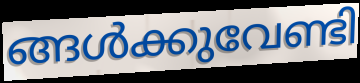
ങ്ങൾക്കുവേണ്ടി